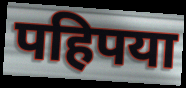
पहिपया